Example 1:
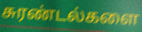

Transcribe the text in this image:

சுரண்டல்களை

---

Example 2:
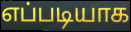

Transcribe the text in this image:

எப்படியாக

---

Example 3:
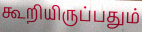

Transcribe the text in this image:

கூறியிருப்பதும்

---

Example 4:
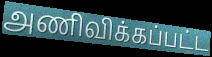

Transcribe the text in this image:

அணிவிக்கப்பட்ட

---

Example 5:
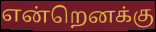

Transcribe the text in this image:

என்றெனக்கு